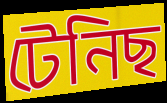
টেনিছ